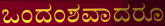
ಒಂದಂಶವಾದರೂ